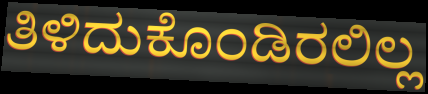
ತಿಳಿದುಕೊಂಡಿರಲಿಲ್ಲ